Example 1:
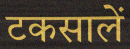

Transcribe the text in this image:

टकसालें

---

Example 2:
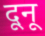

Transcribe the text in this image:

दूनू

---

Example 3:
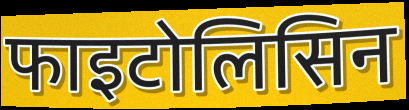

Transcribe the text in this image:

फाइटोलिसिन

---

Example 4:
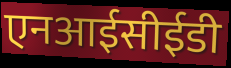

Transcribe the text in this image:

एनआईसीईडी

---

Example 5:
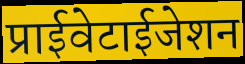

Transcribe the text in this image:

प्राईवेटाईजेशन